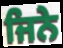
ਜਿਨੇ